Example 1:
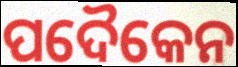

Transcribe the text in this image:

ପଦୈକେନ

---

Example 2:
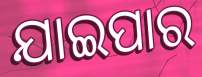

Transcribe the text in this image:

ଯାଇପାର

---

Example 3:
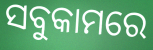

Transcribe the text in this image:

ସବୁକାମରେ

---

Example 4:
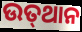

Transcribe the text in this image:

ଉତ୍‍ଥାନ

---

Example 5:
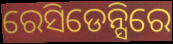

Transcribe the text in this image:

ରେସିଡେନ୍ସିରେ